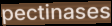
pectinases